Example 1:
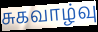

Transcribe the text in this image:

சுகவாழ்வு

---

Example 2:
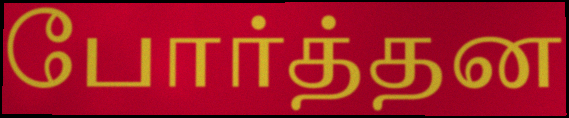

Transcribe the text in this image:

போர்த்தன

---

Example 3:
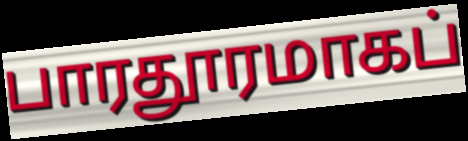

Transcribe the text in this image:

பாரதூரமாகப்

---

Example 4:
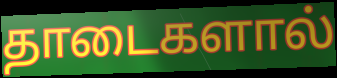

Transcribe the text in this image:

தாடைகளால்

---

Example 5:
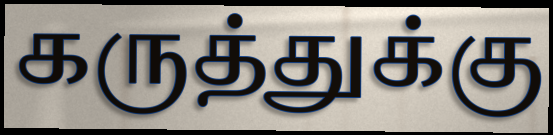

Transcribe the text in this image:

கருத்துக்கு